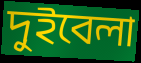
দুইবেলা